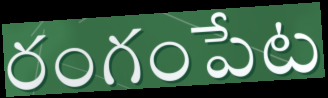
రంగంపేట